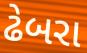
ઢેબરા